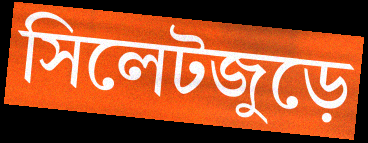
সিলেটজুড়ে